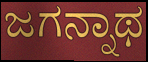
ಜಗನ್ನಾಥ